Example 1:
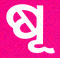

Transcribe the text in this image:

ଷୂ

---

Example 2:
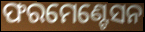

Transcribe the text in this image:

ଫରମେଣ୍ଟେସନ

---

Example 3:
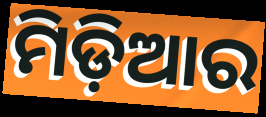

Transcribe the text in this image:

ମିଡ଼ିଆର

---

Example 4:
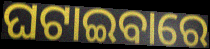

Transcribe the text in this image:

ଘଟାଇବାରେ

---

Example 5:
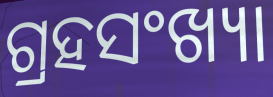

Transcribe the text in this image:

ଗ୍ରହସଂଖ୍ୟା